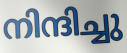
നിന്ദിച്ചു